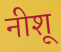
नीशू